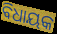
ବିଧାୟକ